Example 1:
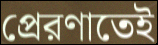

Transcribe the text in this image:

প্রেরণাতেই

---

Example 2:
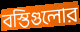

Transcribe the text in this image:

বস্তিগুলোর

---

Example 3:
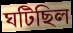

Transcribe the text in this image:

ঘটিছিল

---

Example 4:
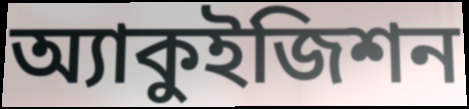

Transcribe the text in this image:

অ্যাকুইজিশন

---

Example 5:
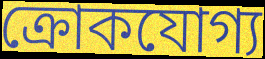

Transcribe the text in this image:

ক্রোকযোগ্য